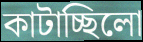
কাটাচ্ছিলো